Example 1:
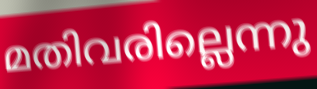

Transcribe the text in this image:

മതിവരില്ലെന്നു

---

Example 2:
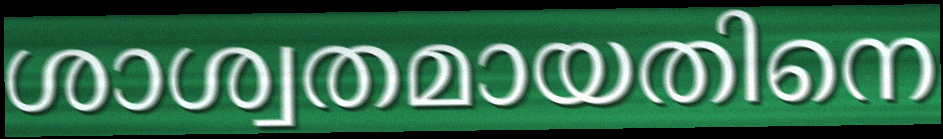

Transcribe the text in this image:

ശാശ്വതമായതിനെ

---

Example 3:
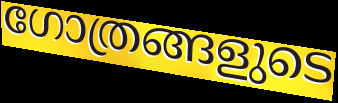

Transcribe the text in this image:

ഗോത്രങ്ങളുടെ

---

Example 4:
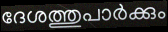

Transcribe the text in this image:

ദേശത്തുപാർക്കും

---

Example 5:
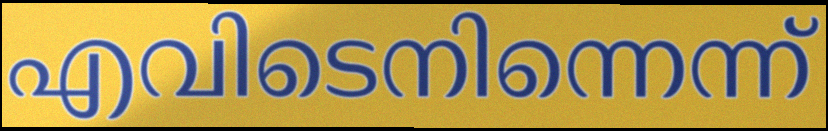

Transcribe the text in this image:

എവിടെനിന്നെന്ന്